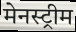
मेनस्‍ट्रीम